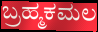
ಬ್ರಹ್ಮಕಮಲ